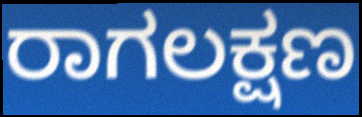
ರಾಗಲಕ್ಷಣ